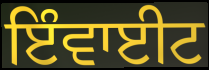
ਇੰਵਾਈਟ